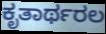
ಕೃತಾರ್ಥರಲ